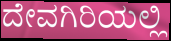
ದೇವಗಿರಿಯಲ್ಲಿ